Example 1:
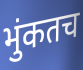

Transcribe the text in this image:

भुंकतच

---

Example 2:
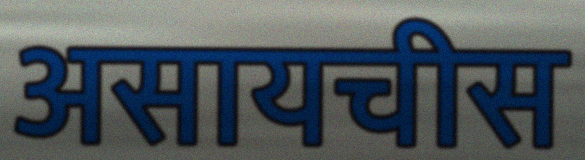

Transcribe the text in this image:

असायचीस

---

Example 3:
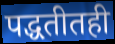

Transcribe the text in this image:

पद्धतीतही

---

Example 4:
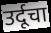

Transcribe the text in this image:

उर्दूचा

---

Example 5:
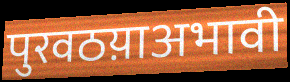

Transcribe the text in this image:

पुरवठय़ाअभावी